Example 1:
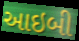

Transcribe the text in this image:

આઇબી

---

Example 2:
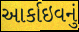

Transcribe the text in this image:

આર્કાઇવનું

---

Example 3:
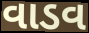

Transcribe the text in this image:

વાડવ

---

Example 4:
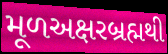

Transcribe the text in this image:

મૂળઅક્ષરબ્રહ્મથી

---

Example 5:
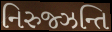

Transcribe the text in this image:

નિરુજ્ઝન્તિ